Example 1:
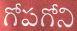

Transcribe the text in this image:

గోపగోని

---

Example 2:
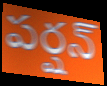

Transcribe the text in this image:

పర్షన్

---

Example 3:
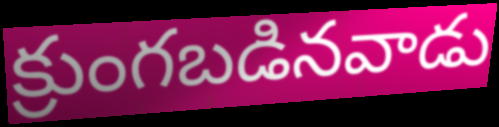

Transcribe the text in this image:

క్రుంగబడినవాడు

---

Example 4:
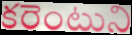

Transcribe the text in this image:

కరెంటుని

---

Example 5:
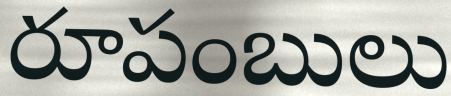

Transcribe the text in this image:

రూపంబులు